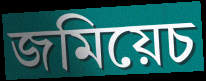
জমিয়েচ